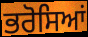
ਭਰੋਸਿਆਂ